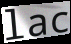
lac